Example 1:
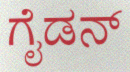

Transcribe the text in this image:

ಗೈಡನ್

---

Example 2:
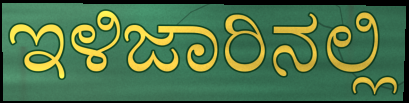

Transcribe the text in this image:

ಇಳಿಜಾರಿನಲ್ಲಿ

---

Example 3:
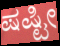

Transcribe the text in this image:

ಷಷ್ಟೀ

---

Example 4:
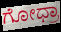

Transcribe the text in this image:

ಗೋಧ್ರಾ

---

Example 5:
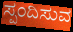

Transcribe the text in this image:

ಸ್ಪಂದಿಸುವ